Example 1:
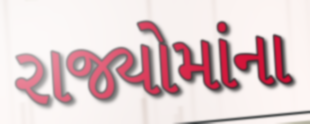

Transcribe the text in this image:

રાજ્યોમાંના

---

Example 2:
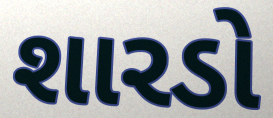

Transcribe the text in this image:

શારડો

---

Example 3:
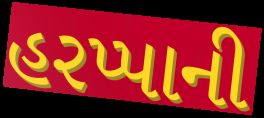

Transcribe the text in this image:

હરપ્પાની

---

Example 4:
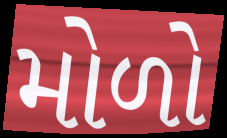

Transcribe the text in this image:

મોળો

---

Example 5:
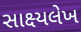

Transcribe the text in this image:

સાક્ષ્યલેખ